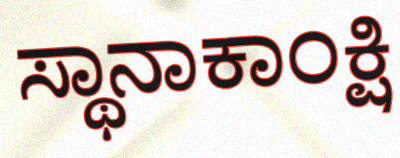
ಸ್ಥಾನಾಕಾಂಕ್ಷಿ